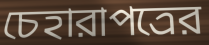
চেহারাপত্রের